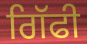
ਗਿੱਫੀ